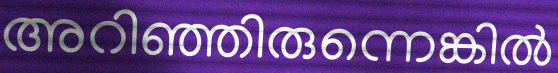
അറിഞ്ഞിരുന്നെങ്കിൽ